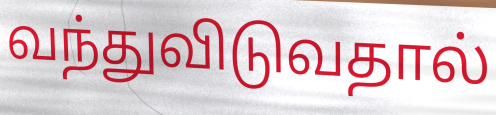
வந்துவிடுவதால்